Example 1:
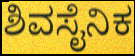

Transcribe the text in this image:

ಶಿವಸೈನಿಕ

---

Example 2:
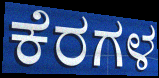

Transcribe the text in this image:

ಕೆರಗಳ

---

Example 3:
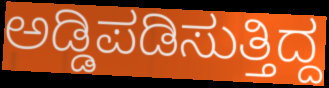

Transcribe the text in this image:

ಅಡ್ಡಿಪಡಿಸುತ್ತಿದ್ದ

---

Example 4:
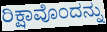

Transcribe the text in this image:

ರಿಕ್ಷಾವೊಂದನ್ನು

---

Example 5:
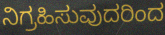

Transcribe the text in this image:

ನಿಗ್ರಹಿಸುವುದರಿಂದ